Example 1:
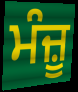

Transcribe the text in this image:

ਮੰਜ਼ੂ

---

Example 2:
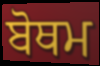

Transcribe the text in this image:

ਬੋਥਮ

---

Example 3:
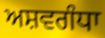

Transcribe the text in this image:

ਅਸ਼ਵਗੰਧਾ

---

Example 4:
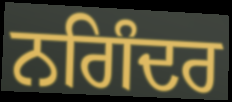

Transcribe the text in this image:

ਨਗਿੰਦਰ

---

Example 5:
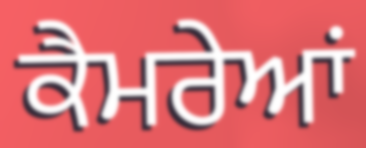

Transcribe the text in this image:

ਕੈਮਰੇਆਂ